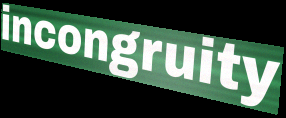
incongruity